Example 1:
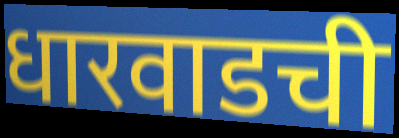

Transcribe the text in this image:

धारवाडची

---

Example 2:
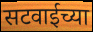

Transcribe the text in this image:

सटवाईच्या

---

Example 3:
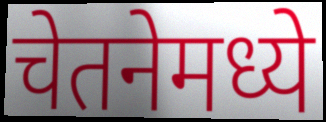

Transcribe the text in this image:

चेतनेमध्ये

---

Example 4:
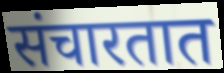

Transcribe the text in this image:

संचारतात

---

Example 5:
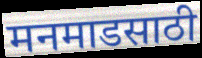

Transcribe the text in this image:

मनमाडसाठी